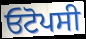
ਓਟੋਪਸੀ